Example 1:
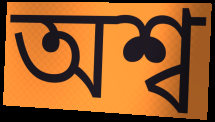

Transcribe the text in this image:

অশ্ব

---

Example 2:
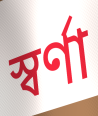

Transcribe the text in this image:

স্বর্ণা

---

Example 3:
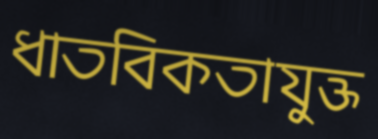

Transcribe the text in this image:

ধাতবিকতাযুক্ত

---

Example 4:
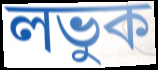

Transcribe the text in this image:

লভুক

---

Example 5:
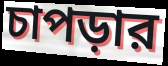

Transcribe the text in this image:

চাপড়ার